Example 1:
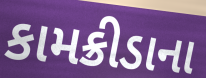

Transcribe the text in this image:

કામક્રીડાના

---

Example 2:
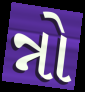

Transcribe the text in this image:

ન્નો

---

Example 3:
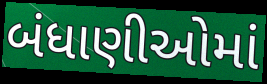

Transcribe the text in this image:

બંધાણીઓમાં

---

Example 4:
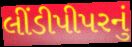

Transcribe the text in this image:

લીંડીપીપરનું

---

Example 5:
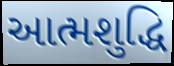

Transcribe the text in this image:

આત્મશુદ્ધિ